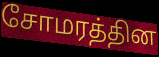
சோமரத்தின